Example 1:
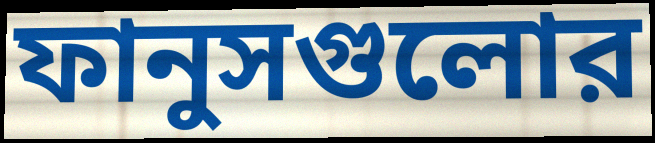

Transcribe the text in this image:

ফানুসগুলোর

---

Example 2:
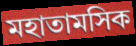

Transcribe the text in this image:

মহাতামসিক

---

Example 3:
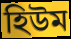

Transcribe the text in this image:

হিউম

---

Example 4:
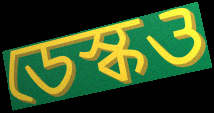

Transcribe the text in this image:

ডেস্কও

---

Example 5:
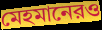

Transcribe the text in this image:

মেহমানেরও